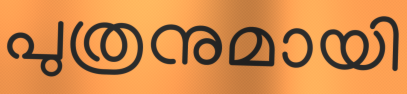
പുത്രനുമായി